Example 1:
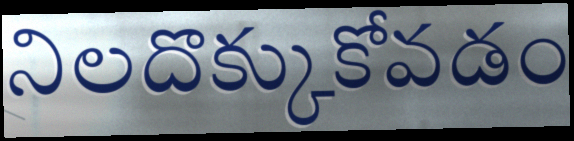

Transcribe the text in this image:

నిలదొక్కుకోవడం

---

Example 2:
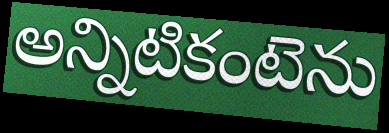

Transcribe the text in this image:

అన్నిటికంటెను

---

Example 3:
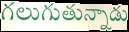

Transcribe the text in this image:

గలుగుతున్నాడు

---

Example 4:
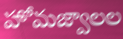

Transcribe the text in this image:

హోమజ్వాలల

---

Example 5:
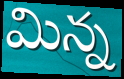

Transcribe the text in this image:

మిన్న